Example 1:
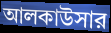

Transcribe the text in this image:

আলকাউসার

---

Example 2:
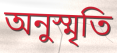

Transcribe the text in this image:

অনুস্মৃতি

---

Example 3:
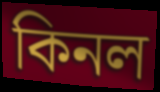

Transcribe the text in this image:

কিনল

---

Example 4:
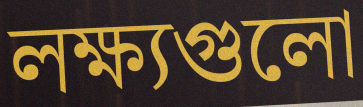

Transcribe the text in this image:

লক্ষ্যগুলো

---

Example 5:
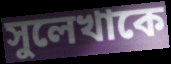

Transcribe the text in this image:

সুলেখাকে